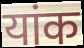
यांक